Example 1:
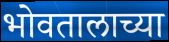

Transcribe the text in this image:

भोवतालाच्या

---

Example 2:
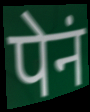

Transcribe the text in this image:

पेनं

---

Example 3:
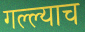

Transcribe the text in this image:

गल्ल्याच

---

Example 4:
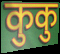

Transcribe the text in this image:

कुकु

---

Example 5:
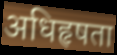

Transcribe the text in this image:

अधिहृषता